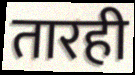
तारही